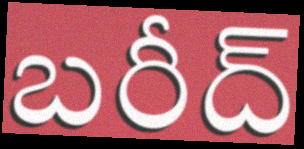
బరీద్